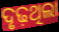
ଦୃଢ଼ଥିଲା